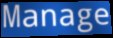
Manage